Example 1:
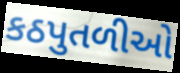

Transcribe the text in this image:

કઠપુતળીઓ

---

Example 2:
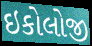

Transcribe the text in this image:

ઇકોલોજી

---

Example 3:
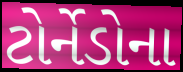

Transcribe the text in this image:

ટોર્નેડોના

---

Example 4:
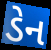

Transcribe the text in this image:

ડેન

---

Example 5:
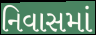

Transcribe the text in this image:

નિવાસમાં